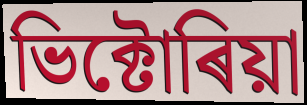
ভিক্টোৰিয়া